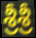
శ్రీశ్రీ